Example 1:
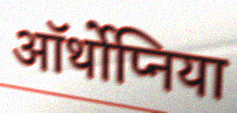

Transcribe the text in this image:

ऑर्थोप्निया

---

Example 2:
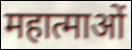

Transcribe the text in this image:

महात्माओं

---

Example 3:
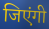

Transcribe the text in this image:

जिएंगी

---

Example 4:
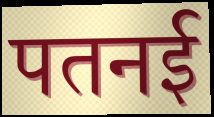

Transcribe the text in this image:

पतनई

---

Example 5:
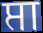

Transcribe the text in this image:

प्ता